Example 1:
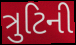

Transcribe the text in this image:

ત્રુટિની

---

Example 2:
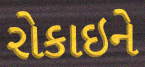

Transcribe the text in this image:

રોકાઇને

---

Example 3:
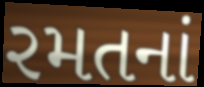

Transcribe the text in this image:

રમતનાં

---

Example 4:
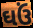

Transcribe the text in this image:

ઘઉં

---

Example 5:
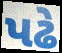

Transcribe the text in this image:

પઢે